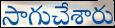
సాగుచేశారు